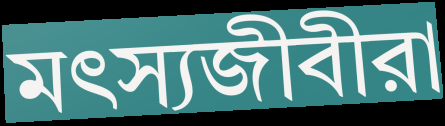
মৎস্যজীবীরা